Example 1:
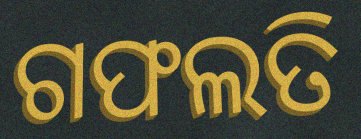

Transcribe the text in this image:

ଗଫଲତି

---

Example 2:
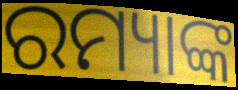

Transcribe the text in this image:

ରମ୍ୟାଙ୍କ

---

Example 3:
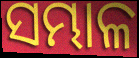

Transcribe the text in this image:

ସମ୍ଭାଳ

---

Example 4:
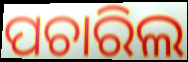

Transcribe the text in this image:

ପଚାରିଲ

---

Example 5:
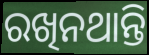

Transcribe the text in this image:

ରଖିନଥାନ୍ତି